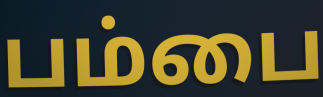
பம்பை